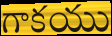
గాకయు